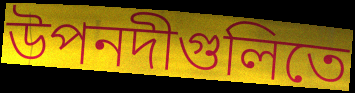
উপনদীগুলিতে